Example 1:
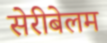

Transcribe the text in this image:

सेरीबेलम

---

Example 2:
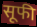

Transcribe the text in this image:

सूफी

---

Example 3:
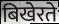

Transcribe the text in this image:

बिखेरते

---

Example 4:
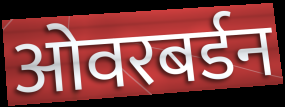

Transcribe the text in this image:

ओवरबर्डन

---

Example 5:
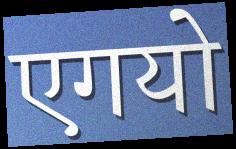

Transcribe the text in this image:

एगयो